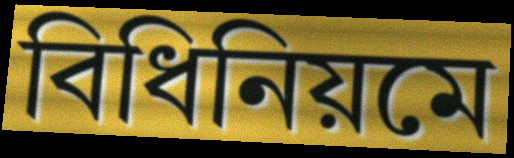
বিধিনিয়মে